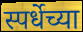
स्पर्धेच्या